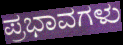
ಪ್ರಭಾವಗಳು